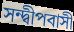
সন্দ্বীপবাসী